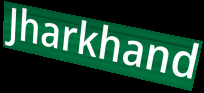
Jharkhand